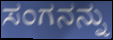
ಸಂಗನನ್ನು